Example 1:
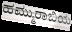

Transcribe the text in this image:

ಹಮ್ಮುರಾಬಿಯ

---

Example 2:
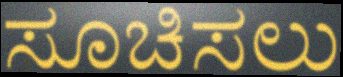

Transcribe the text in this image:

ಸೂಚಿಸಲು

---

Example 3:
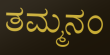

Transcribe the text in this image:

ತಮ್ಮನಂ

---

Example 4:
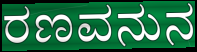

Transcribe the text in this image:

ರಣವನುನ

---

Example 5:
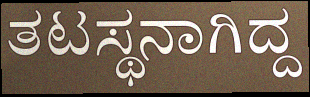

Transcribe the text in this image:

ತಟಸ್ಥನಾಗಿದ್ದ